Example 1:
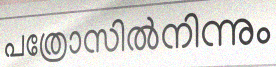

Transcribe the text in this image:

പത്രോസിൽനിന്നും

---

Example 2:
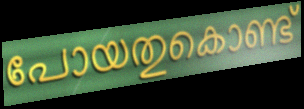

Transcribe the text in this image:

പോയതുകൊണ്ട്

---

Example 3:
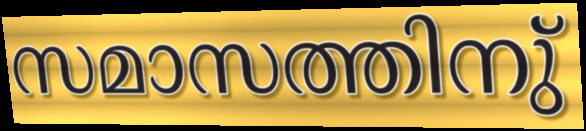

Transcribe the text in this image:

സമാസത്തിനു്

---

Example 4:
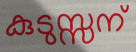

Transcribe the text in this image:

കുടുസ്സന്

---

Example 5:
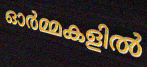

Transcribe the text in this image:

ഓർമ്മകളിൽ